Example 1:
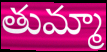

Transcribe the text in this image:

తుమ్మా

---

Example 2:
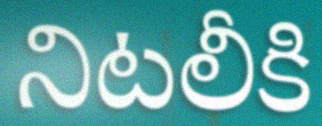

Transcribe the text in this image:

నిటలీకి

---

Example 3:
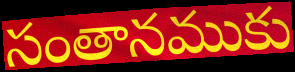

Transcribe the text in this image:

సంతానముకు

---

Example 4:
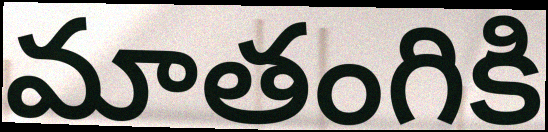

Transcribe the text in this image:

మాతంగికి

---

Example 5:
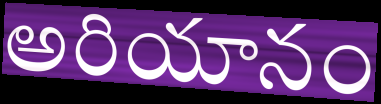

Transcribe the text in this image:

అరియానం